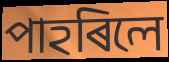
পাহৰিলে